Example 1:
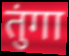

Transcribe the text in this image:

तुंगा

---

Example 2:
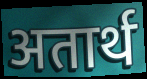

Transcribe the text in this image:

अतार्थ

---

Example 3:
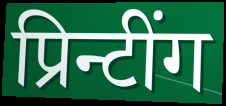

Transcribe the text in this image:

प्रिन्टींग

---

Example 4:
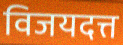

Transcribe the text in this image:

विजयदत्त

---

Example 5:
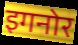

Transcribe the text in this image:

इगनोर